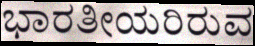
ಭಾರತೀಯರಿರುವ